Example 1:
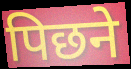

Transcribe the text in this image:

पिछने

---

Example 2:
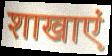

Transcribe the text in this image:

शाखाएं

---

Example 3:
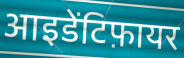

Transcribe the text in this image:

आइडेंटिफ़ायर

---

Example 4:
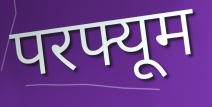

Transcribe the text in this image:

परफ्यूम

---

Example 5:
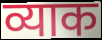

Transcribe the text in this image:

व्याक